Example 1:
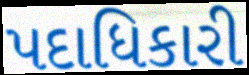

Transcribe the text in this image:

પદાધિકારી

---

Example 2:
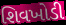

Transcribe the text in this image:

શિવખોડી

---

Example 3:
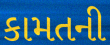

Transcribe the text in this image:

કામતની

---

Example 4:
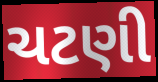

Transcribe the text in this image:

ચટણી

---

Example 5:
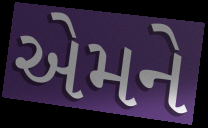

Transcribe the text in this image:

એમને